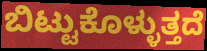
ಬಿಟ್ಟುಕೊಳ್ಳುತ್ತದೆ